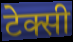
टेक्सी